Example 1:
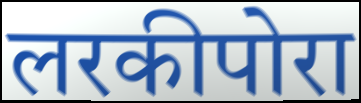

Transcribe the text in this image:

लरकीपोरा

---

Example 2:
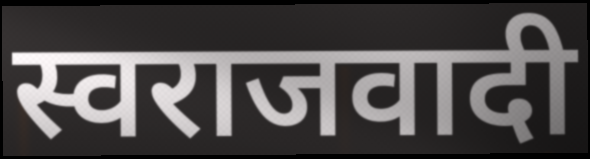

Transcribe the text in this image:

स्वराजवादी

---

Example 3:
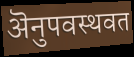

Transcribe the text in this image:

ऄनुपवस्थवत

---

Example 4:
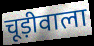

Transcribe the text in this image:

चूड़ीवाला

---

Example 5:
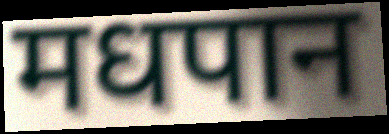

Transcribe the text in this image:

मधपान